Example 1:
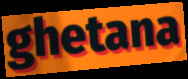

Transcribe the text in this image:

ghetana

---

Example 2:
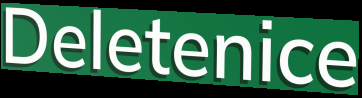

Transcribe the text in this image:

Deletenice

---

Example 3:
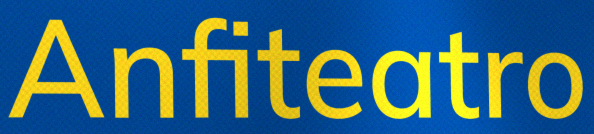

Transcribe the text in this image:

Anfiteatro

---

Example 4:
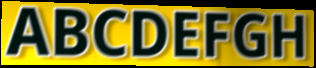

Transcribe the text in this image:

ABCDEFGH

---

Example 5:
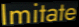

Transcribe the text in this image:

Imitate